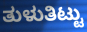
ತುಳುತಿಟ್ಟು